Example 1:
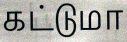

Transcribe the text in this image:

கட்டுமா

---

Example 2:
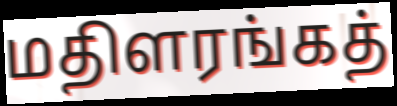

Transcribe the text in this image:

மதிளரங்கத்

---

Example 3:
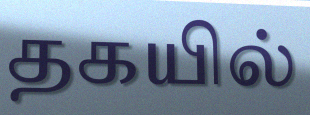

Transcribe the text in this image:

தகயில்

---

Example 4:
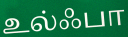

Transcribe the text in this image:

உல்ஃபா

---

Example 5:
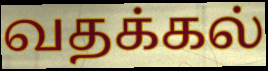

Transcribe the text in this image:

வதக்கல்